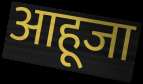
आहूजा